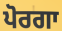
ਪੋਰਗਾ